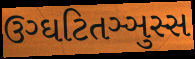
ઉગ્ઘટિતઞ્ઞુસ્સ